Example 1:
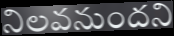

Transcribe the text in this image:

నిలవనుందని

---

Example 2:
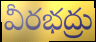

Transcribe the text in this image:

వీరభద్రు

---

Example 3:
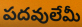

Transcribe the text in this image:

పదవులేమీ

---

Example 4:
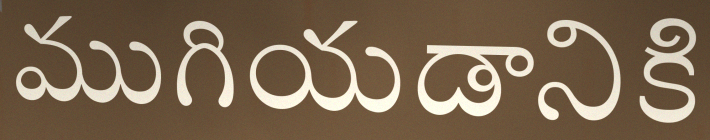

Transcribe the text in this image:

ముగియడానికి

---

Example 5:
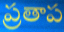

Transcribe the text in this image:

ప్రతాప